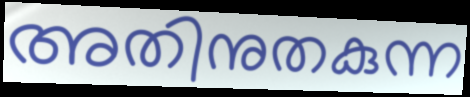
അതിനുതകുന്ന